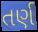
તર્ણ